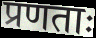
प्रणताः